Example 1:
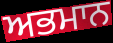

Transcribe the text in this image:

ਅਭਮਾਨ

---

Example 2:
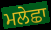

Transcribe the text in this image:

ਮਲੇਛਾ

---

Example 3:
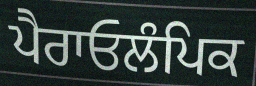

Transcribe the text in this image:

ਪੈਰਾਓਲੰਪਿਕ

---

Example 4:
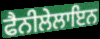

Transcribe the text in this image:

ਫੈਨੀਲੇਲਾਇਨ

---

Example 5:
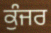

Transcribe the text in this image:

ਕੁੰਜਰ